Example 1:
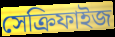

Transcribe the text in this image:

সেক্রিফাইজ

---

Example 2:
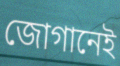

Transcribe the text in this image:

জোগানেই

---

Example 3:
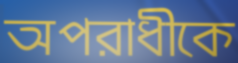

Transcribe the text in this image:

অপরাধীকে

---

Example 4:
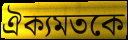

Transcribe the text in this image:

ঐক্যমতকে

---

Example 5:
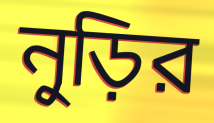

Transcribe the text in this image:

নুড়ির